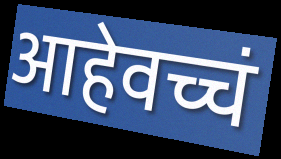
आहेवच्चं